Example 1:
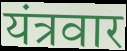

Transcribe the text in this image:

यंत्रवार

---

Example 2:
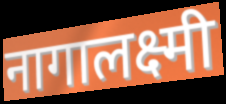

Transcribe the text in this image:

नागालक्ष्मी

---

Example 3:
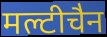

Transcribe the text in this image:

मल्टीचैन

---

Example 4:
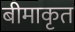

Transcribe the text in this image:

बीमाकृत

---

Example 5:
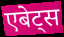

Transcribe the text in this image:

एबेट्स